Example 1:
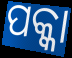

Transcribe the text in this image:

ପକ୍କା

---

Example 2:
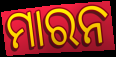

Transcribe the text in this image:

ମାରନ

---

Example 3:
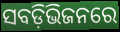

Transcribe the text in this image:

ସବଡ଼ିଭିଜନରେ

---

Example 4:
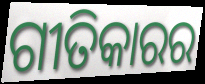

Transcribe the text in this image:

ଗୀତିକାରର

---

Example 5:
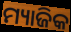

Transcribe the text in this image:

ମ୍ୟାଜିକ